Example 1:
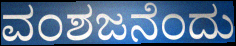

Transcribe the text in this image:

ವಂಶಜನೆಂದು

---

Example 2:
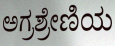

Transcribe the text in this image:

ಅಗ್ರಶ್ರೇಣಿಯ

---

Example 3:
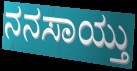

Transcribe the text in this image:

ನನಸಾಯ್ತು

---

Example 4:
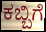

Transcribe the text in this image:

ಕಬ್ಬಿಗೆ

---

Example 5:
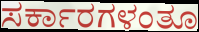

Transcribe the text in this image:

ಸರ್ಕಾರಗಳಂತೂ